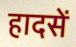
हादसें